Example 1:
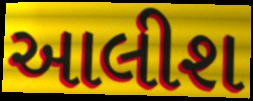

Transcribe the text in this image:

આલીશ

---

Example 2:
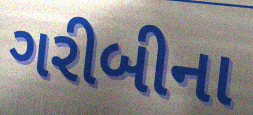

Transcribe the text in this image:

ગરીબીના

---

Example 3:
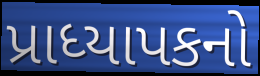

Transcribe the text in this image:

પ્રાધ્યાપકનો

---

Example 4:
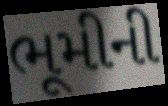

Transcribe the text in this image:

ભૂમીની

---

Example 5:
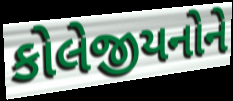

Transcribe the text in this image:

કોલેજીયનોને